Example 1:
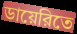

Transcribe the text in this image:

ডায়েরিতে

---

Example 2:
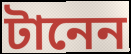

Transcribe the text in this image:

টানেন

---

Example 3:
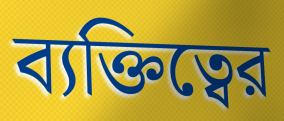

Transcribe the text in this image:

ব্যক্তিত্বের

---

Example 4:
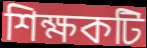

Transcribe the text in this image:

শিক্ষকটি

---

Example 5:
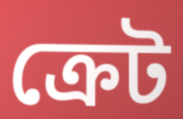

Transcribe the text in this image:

ক্রেট